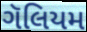
ગૅલિયમ